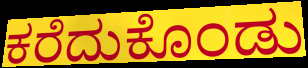
ಕರೆದುಕೊಂಡು